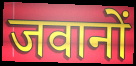
जवानों